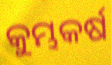
କୁମ୍ଭକର୍ଷ